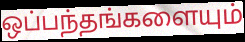
ஒப்பந்தங்களையும்